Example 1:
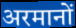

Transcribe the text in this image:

अरमानों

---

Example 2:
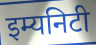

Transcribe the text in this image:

इम्यनिटी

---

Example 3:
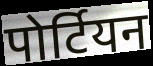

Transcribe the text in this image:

पोर्टियन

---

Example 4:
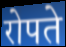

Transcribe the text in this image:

रोपते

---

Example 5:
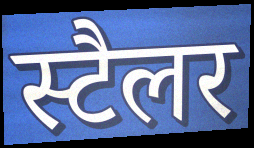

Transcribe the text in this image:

स्टैलर